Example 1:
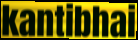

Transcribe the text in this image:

kantibhai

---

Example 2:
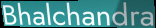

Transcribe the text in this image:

Bhalchandra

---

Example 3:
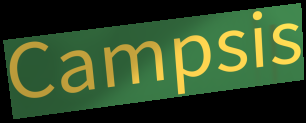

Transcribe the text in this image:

Campsis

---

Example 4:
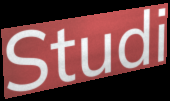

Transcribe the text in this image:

Studi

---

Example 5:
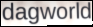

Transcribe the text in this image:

dagworld